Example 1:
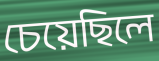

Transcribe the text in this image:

চেয়েছিলে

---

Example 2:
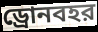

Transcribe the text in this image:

ড্রোনবহর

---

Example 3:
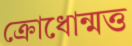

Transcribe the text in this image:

ক্রোধোন্মত্ত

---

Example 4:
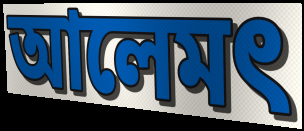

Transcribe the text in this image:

আলেমৎ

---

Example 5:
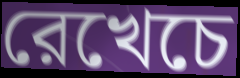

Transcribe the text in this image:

রেখেচে